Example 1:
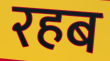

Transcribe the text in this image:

रहब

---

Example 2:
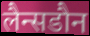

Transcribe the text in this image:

लैन्सडौन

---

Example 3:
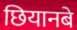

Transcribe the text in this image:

छियानबे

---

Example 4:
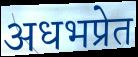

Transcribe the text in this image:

अधभप्रेत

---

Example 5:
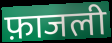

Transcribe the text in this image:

फ़ाजली